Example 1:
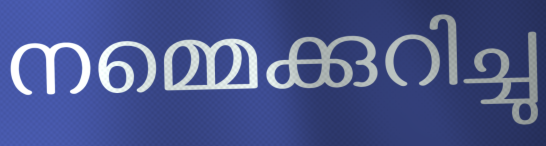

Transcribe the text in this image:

നമ്മെക്കുറിച്ചു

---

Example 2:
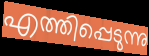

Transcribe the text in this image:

എത്തിപ്പെടുന്നു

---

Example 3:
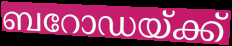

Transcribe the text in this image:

ബറോഡയ്ക്ക്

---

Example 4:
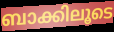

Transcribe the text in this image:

ബാക്കിലൂടെ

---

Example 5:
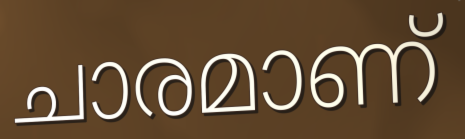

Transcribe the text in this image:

ചാരമാണ്